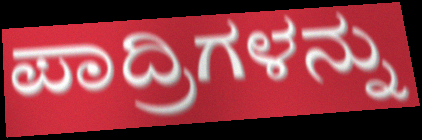
ಪಾದ್ರಿಗಳನ್ನು